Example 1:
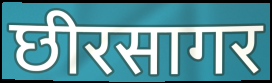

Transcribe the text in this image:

छीरसागर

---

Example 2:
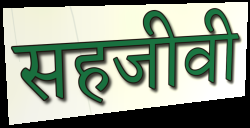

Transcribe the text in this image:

सहजीवी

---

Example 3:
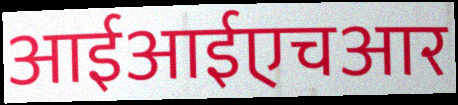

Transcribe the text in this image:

आईआईएचआर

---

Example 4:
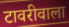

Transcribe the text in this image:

टावरीवाला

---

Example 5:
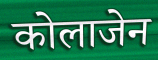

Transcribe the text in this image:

कोलाजेन